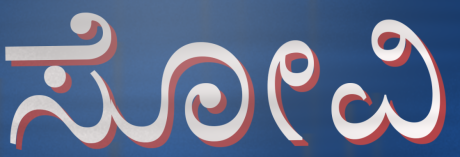
ಸೋವಿ